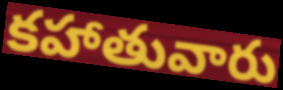
కహాతువారు